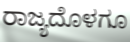
ರಾಜ್ಯದೊಳಗೂ